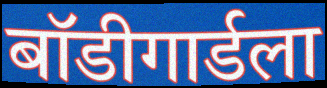
बॉडीगार्डला